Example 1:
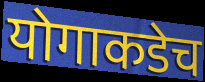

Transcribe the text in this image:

योगाकडेच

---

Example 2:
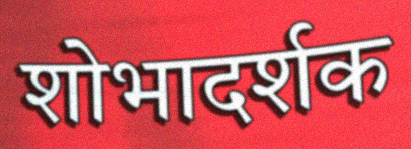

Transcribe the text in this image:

शोभादर्शक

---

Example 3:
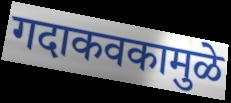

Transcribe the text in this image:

गदाकवकामुळे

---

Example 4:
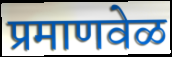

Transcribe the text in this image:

प्रमाणवेळ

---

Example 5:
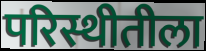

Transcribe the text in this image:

परिस्थीतीला